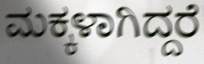
ಮಕ್ಕಳಾಗಿದ್ದರೆ